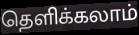
தெளிக்கலாம்